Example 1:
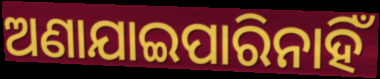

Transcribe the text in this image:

ଅଣାଯାଇପାରିନାହିଁ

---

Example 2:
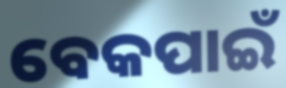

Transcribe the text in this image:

ବେକପାଇଁ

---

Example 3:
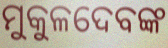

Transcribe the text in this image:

ମୁକୁଳଦେବଙ୍କ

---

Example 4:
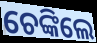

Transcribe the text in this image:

ଚେଙ୍କିଲେ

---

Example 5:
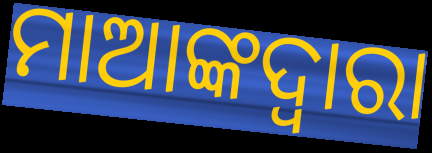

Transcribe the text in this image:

ମାଆଙ୍କଦ୍ଵାରା